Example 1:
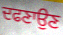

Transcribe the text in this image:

ਦਫਣਾਉਣ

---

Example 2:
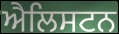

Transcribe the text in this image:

ਐਲਿਸਟਨ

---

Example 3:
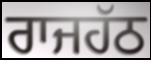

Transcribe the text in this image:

ਰਾਜਹੱਠ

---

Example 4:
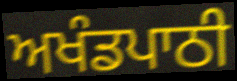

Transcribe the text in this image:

ਅਖੰਡਪਾਠੀ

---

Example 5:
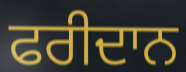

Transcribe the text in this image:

ਫਰੀਦਾਨ